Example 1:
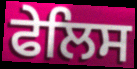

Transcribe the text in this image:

ਫੇਲਿਸ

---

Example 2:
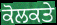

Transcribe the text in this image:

ਕੋਲਕਤੇ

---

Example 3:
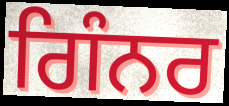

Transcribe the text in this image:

ਗਿੰਨਰ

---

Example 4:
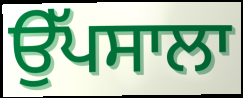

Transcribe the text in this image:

ਉੱਪਸਾਲਾ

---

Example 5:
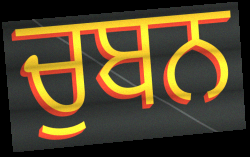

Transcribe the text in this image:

ਚੁਬਨ